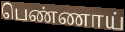
பெண்ணாய்